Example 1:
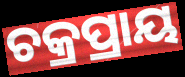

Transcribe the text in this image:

ଚକ୍ରପ୍ରାୟ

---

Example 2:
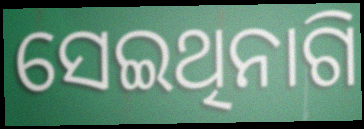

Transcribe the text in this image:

ସେଇଥିନାଗି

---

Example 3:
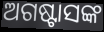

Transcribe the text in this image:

ଅଗଷ୍ଟାସଙ୍କ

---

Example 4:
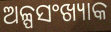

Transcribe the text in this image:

ଅଳ୍ପସଂଖ୍ୟାକ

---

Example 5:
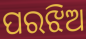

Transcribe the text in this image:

ପରଝିଅ